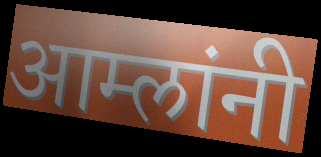
आम्लांनी